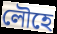
লৌহে